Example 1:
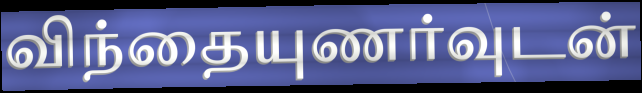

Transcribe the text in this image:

விந்தையுணர்வுடன்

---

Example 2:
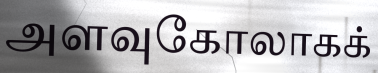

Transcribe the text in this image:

அளவுகோலாகக்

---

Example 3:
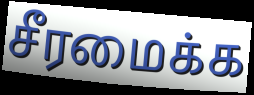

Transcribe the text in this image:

சீரமைக்க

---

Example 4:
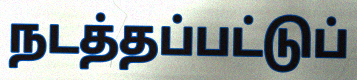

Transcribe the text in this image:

நடத்தப்பட்டுப்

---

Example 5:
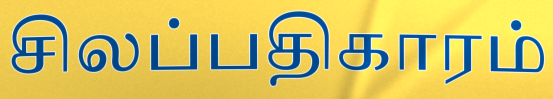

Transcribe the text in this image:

சிலப்பதிகாரம்